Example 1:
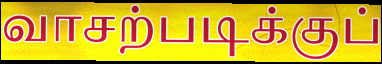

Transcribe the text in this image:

வாசற்படிக்குப்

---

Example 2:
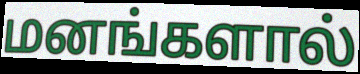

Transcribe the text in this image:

மனங்களால்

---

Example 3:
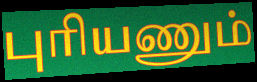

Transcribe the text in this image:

புரியணும்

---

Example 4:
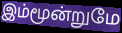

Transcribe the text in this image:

இம்மூன்றுமே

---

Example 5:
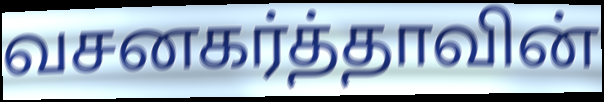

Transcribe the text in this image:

வசனகர்த்தாவின்